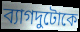
ব্যাগদুটোকে